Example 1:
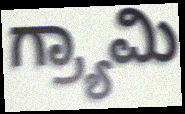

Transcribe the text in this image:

ಗ್ರ್ಯಾಮಿ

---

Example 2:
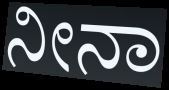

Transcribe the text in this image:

ನೀನಾ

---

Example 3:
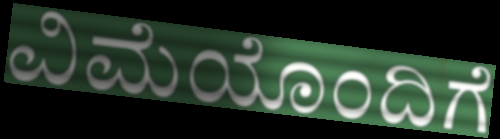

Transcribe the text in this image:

ವಿಮೆಯೊಂದಿಗೆ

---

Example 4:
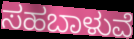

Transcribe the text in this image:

ಸಹಬಾಳುವೆ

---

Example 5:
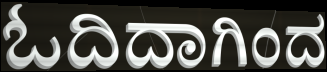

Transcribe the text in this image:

ಓದಿದಾಗಿಂದ